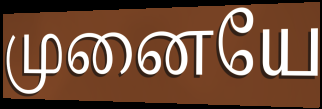
முனையே